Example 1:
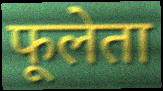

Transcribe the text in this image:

फूलेता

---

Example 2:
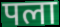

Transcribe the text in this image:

पला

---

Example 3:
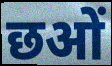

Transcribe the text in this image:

छओं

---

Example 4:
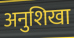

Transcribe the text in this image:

अनुशिखा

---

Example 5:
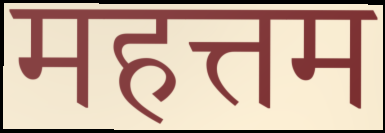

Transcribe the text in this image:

महत्तम